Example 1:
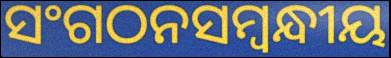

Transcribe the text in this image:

ସଂଗଠନସମ୍ବନ୍ଧୀୟ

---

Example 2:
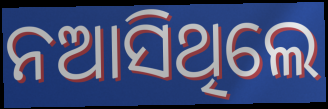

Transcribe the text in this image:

ନଆସିଥିଲେ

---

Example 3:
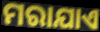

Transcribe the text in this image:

ମରାଯାଏ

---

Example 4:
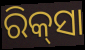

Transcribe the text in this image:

ରିକ୍‌ସା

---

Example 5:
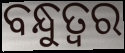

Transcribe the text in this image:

ବନ୍ଧୁତ୍ବର